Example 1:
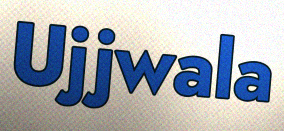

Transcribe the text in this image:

Ujjwala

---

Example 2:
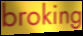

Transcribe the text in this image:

broking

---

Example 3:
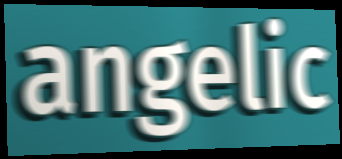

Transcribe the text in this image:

angelic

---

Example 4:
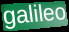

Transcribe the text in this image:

galileo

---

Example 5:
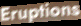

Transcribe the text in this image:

Eruptions